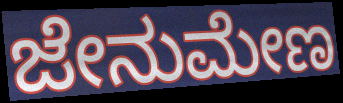
ಜೇನುಮೇಣ